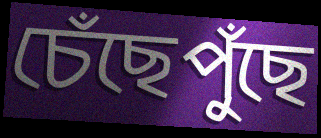
চেঁছেপুঁছে